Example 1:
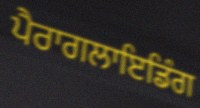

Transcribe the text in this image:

ਪੈਰਾਗਲਾਇਡਿੰਗ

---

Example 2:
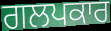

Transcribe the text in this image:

ਗਲਪਕਾਰ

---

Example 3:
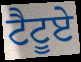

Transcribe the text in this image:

ਟੈਟੂਏ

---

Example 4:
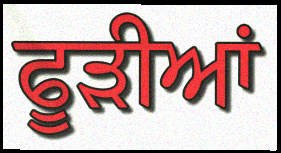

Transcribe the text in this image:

ਫੂੜੀਆਂ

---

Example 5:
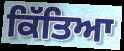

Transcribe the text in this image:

ਕਿੱਤਿਆ